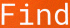
Find